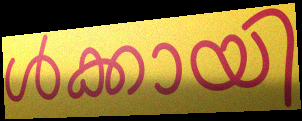
ൾക്കായി